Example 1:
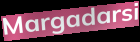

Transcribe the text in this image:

Margadarsi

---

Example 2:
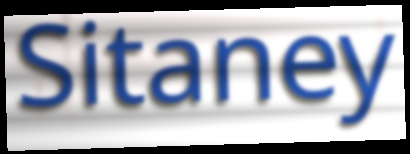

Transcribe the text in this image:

Sitaney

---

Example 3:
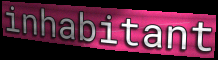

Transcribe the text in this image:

inhabitant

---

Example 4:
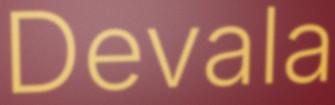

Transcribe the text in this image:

Devala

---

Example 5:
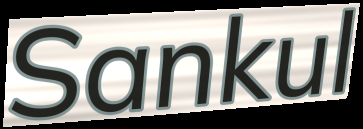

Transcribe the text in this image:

Sankul